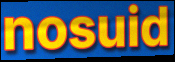
nosuid